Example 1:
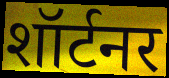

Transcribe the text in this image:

शॉर्टनर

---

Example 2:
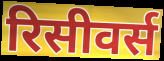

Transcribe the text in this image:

रिसीवर्स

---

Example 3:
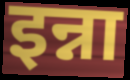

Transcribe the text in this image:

इन्ना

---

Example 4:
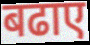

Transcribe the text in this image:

बढाए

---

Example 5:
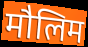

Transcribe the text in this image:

मौलिम